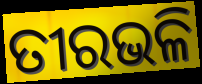
ତୀରଭଳି